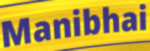
Manibhai